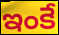
ఇంకే